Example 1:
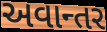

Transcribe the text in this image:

અવાન્તર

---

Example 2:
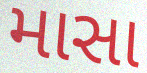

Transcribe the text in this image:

માસા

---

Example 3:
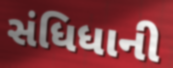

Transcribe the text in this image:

સંધિધાની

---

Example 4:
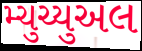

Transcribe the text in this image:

મ્ચુચ્યુઅલ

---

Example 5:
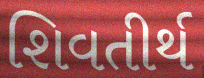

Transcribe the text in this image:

શિવતીર્થ